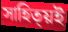
সাহিত্য়ই